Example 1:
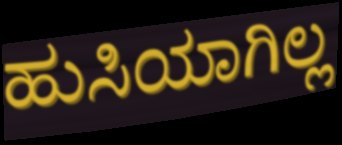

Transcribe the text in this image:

ಹುಸಿಯಾಗಿಲ್ಲ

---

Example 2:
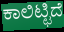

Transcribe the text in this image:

ಕಾಲಿಟ್ಟಿದೆ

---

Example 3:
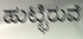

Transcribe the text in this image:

ಹುಟ್ಟಿರುವೆ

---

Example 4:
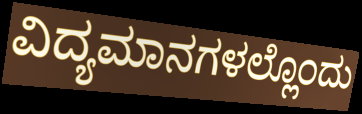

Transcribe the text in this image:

ವಿದ್ಯಮಾನಗಳಲ್ಲೊಂದು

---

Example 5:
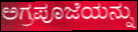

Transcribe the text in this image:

ಅಗ್ರಪೂಜೆಯನ್ನು